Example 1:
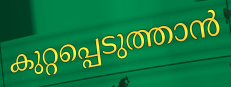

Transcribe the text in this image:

കുറ്റപ്പെടുത്താൻ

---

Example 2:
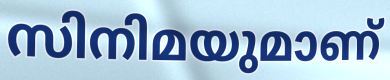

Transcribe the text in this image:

സിനിമയുമാണ്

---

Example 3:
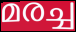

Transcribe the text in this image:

മരച്ച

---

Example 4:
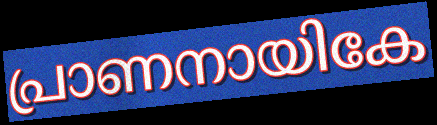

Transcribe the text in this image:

പ്രാണനായികേ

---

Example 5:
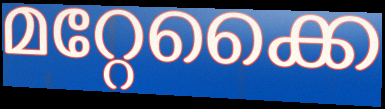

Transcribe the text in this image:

മറ്റേക്കൈ